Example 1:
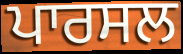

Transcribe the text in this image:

ਪਾਰਸਲ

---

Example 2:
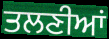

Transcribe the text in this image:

ਤਲਣੀਆਂ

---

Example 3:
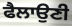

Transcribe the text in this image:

ਫੈਲਾਉਣੀ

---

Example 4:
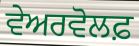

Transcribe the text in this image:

ਵੇਅਰਵੋਲਫ਼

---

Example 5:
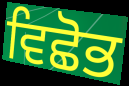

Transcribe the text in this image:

ਵਿਛੋਭ